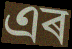
এৰ